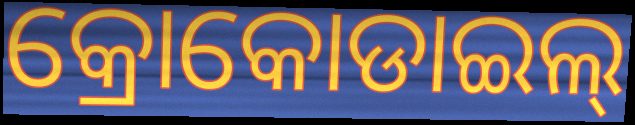
କ୍ରୋକୋଡାଇଲ୍